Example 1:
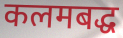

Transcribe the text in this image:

कलमबद्ध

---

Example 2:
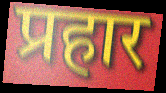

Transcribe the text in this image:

प्रहार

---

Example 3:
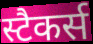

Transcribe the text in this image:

स्टैकर्स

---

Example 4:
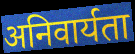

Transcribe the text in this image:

अनिवार्यता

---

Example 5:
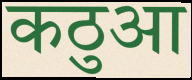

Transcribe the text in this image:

कठुआ